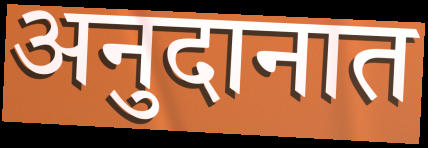
अनुदानात